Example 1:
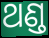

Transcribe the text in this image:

ଥଣ୍ଡ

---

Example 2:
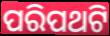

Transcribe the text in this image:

ପରିପଥଟି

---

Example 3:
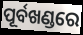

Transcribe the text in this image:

ପୂର୍ବଖଣ୍ଡରେ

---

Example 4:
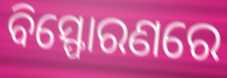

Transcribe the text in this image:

ବିସ୍ଫୋରଣରେ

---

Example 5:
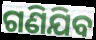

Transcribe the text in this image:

ଗଣିଯିବ